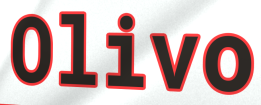
Olivo